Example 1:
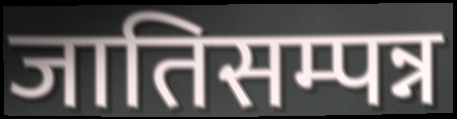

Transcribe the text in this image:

जातिसम्पन्न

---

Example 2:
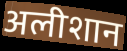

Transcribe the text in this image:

अलीशान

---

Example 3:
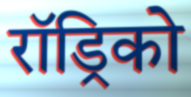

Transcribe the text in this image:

रॉड्रिको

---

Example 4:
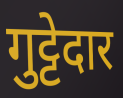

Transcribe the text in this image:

गुट्टेदार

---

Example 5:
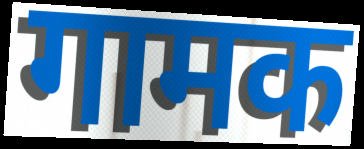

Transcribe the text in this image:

गामक